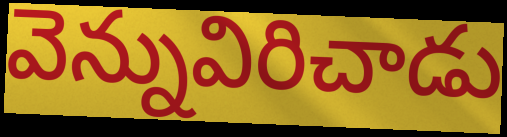
వెన్నువిరిచాడు